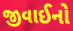
જીવાઈનો